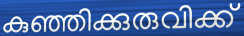
കുഞ്ഞിക്കുരുവിക്ക്